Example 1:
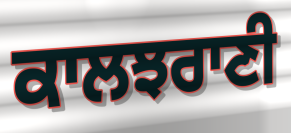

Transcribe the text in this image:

ਕਾਲਝਰਾਣੀ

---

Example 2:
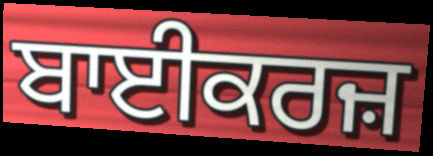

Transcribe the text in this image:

ਬਾਈਕਰਜ਼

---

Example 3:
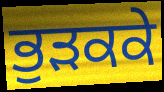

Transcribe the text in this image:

ਭੁੜਕਕੇ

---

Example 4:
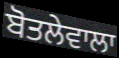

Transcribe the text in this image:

ਬੋਤਲੇਵਾਲਾ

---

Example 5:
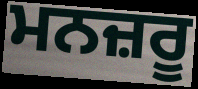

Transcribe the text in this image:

ਮਨਜ਼ਰੂ